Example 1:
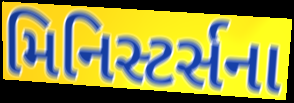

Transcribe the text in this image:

મિનિસ્ટર્સના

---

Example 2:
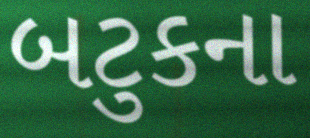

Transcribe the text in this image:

બટુકના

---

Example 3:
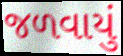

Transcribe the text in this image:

જળવાયું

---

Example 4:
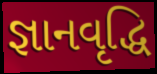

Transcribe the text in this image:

જ્ઞાનવૃદ્ધિ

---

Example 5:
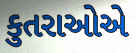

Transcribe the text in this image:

કુતરાઓએ